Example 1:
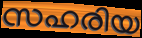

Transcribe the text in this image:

സഹരിയ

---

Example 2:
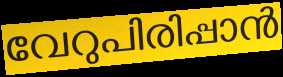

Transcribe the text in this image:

വേറുപിരിപ്പാൻ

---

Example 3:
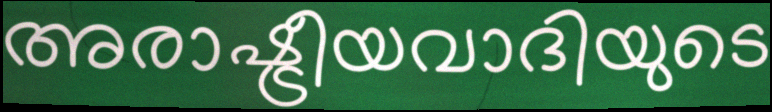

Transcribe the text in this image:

അരാഷ്ട്രീയവാദിയുടെ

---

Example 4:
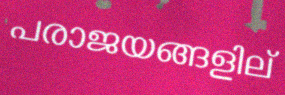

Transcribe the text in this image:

പരാജയങ്ങളില്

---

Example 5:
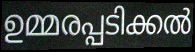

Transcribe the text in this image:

ഉമ്മരപ്പടിക്കൽ